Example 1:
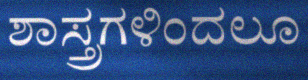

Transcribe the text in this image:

ಶಾಸ್ತ್ರಗಳಿಂದಲೂ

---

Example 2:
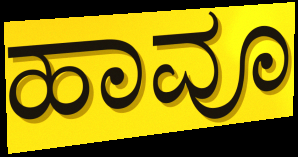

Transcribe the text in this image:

ಹಾವೂ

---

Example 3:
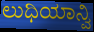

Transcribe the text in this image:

ಲುಧಿಯಾನ್ವಿ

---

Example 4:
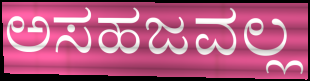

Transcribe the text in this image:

ಅಸಹಜವಲ್ಲ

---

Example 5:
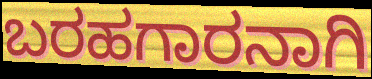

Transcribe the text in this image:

ಬರಹಗಾರನಾಗಿ